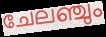
ചേലഞ്ചും